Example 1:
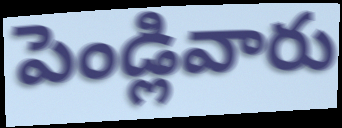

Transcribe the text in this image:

పెండ్లివారు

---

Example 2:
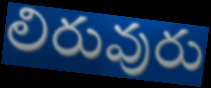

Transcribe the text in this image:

లిరువురు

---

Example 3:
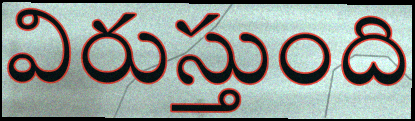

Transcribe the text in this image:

విరుస్తుంది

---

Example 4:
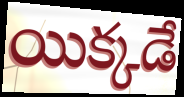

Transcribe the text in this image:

యిక్కడే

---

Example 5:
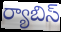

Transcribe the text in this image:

ర్యాబిస్